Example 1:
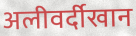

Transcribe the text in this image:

अलीवर्दीखान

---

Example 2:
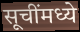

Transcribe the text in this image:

सूचींमध्ये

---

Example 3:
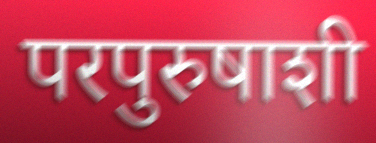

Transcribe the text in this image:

परपुरुषाशी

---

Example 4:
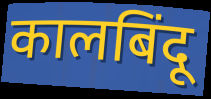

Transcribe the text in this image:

कालबिंदू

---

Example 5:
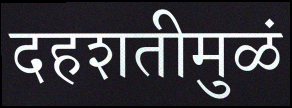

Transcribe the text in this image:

दहशतीमुळं